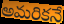
అమరికనే